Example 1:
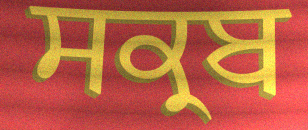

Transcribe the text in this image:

ਸਕ੍ਰਬ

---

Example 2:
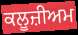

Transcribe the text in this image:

ਕਲੂਜ਼ੀਅਮ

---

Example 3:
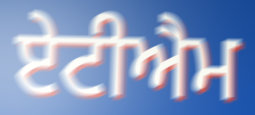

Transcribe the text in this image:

ਏਟੀਐਮ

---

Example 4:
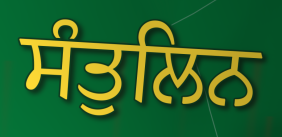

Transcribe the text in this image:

ਸੰਤੁਲਿਨ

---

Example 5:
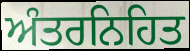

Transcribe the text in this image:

ਅੰਤਰਨਿਹਿਤ